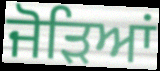
ਜੋੜਿਆਂ